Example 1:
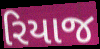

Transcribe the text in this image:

રિયાજ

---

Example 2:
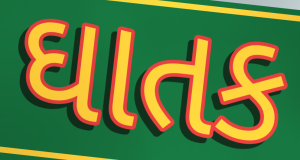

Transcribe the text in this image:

ઘાતક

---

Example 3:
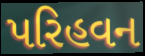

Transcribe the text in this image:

પરિહવન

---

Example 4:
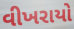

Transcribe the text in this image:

વીખરાયો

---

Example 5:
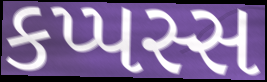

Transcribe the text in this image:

કપ્પસ્સ